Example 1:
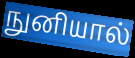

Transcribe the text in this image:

நுனியால்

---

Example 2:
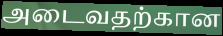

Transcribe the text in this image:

அடைவதற்கான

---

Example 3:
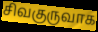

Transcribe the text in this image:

சிவகுருவாக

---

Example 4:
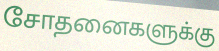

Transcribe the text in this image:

சோதனைகளுக்கு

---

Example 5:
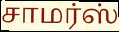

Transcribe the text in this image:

சாமர்ஸ்